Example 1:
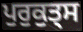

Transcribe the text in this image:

ਪੁਰੁਕੁਤ੍ਸ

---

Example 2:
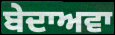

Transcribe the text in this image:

ਬੇਦਾਅਵਾ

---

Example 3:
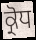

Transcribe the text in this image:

ਕ੍ਰੋਧ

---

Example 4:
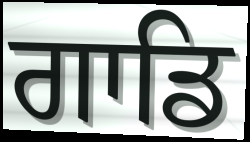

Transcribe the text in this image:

ਗਾਡਿ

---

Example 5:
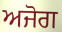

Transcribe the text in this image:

ਅਜੋਗ